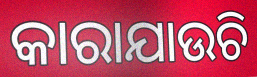
କାରାଯାଉଚି